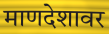
माणदेशावर